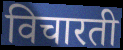
विचारती